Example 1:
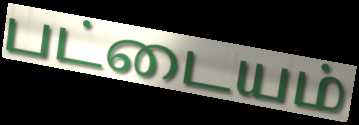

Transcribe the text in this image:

பட்டையம்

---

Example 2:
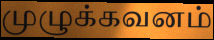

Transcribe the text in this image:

முழுக்கவனம்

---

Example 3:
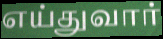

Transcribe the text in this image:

எய்துவார்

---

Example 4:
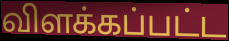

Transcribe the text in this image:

விளக்கப்பட்ட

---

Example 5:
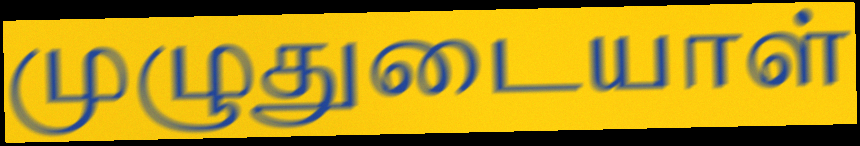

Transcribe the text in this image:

முழுதுடையாள்